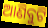
ଆଣିବୁଟି